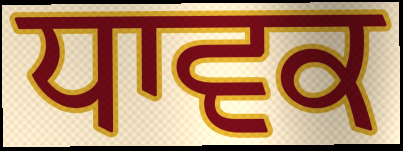
ਧਾਵਕ